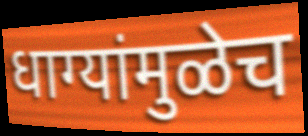
धाग्यांमुळेच